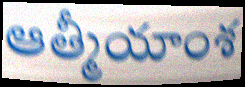
ఆత్మీయాంశ